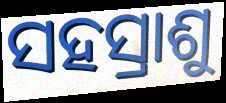
ସହସ୍ରାଶୁ